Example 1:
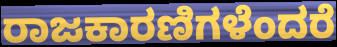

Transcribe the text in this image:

ರಾಜಕಾರಣಿಗಳೆಂದರೆ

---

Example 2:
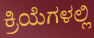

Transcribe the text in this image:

ಕ್ರಿಯೆಗಳಲ್ಲಿ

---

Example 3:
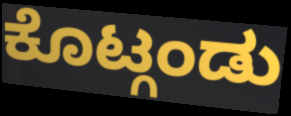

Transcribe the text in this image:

ಕೊಟ್ಗಂಡು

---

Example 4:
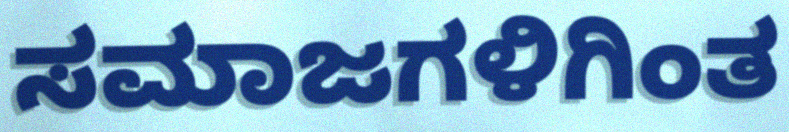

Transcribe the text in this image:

ಸಮಾಜಗಳಿಗಿಂತ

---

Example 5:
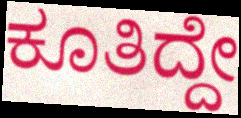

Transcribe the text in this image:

ಕೂತಿದ್ದೇ